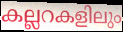
കല്ലറകളിലും